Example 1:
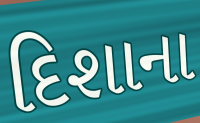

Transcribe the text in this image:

દિશાના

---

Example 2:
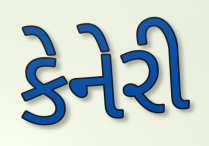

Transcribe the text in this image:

કેનેરી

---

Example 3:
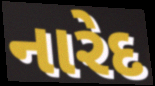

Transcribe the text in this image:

નારેદ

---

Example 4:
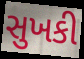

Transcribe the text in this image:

સુખકી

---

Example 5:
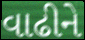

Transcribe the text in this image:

વાઢીને